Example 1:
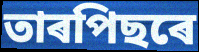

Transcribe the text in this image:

তাৰপিছৰে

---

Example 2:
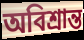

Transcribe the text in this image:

অবিশ্ৰান্ত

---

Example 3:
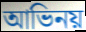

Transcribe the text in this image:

আভিনয়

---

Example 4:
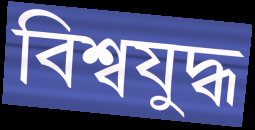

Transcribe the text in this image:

বিশ্বযুদ্ধ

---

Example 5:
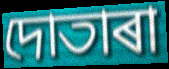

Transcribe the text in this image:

দোতাৰা